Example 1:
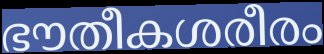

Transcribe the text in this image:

ഭൗതീകശരീരം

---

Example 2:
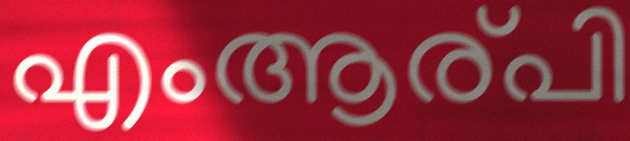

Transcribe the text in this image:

എംആര്പി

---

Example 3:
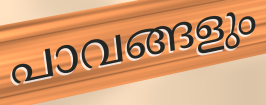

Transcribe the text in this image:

പാവങ്ങളും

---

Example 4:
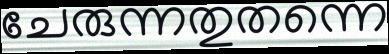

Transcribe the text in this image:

ചേരുന്നതുതന്നെ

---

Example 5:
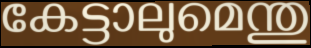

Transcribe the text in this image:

കേട്ടാലുമെന്തു